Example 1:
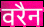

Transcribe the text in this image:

वरैन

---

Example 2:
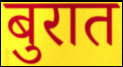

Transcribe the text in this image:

बुरात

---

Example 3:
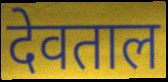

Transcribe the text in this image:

देवताल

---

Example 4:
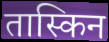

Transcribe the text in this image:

तास्किन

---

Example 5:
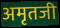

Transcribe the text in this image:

अमृतजी